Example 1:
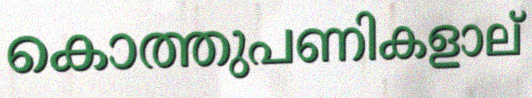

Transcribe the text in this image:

കൊത്തുപണികളാല്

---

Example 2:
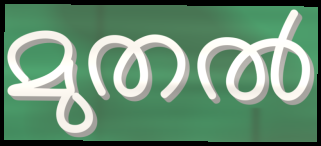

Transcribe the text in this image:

മുതൽ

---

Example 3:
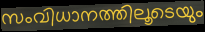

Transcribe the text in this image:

സംവിധാനത്തിലൂടെയും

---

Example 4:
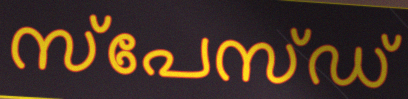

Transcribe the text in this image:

സ്പേസ്ഡ്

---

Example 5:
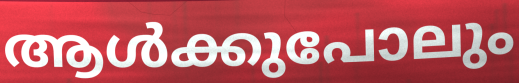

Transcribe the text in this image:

ആൾക്കുപോലും